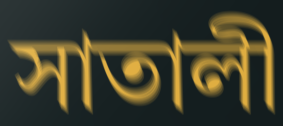
সাতালী